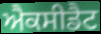
ਐਕਸੀਡੈਟ